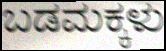
ಬಡಮಕ್ಕಳು